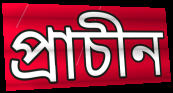
প্রাচীন